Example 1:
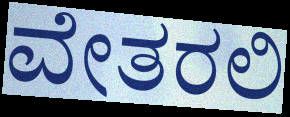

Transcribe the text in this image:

ವೇತರಲಿ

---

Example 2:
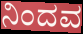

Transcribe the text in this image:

ನಿಂದವ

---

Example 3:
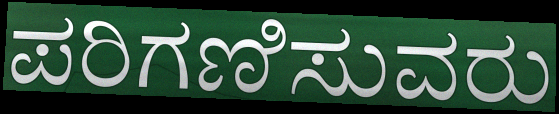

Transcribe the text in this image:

ಪರಿಗಣಿಸುವರು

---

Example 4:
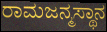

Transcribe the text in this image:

ರಾಮಜನ್ಮಸ್ಥಾನ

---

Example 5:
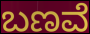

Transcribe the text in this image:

ಬಣವೆ